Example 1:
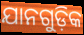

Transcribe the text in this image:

ଯାନଗୁଡ଼ିକ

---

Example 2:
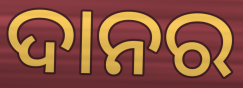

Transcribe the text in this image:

ଦାନର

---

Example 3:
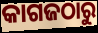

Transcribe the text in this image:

କାଗଜଠାରୁ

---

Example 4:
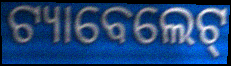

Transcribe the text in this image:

ଟ୍ୟାବେଲେଟ୍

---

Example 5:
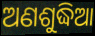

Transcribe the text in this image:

ଅଣଶୁଦ୍ଧିଆ